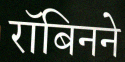
रॉबिनने